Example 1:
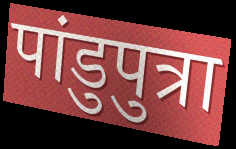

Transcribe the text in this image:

पांडुपुत्रा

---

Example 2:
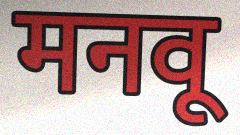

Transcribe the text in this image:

मनवू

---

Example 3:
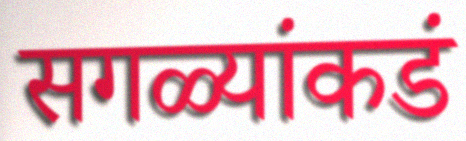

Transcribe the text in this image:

सगळ्यांकडं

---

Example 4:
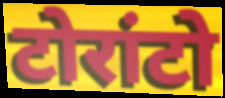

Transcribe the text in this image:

टोरांटो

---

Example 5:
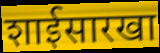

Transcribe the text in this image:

शाईसारखा